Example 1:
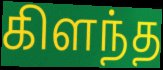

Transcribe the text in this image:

கிளந்த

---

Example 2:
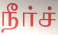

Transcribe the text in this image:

நீர்ச்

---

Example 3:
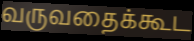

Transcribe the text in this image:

வருவதைக்கூட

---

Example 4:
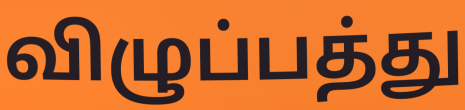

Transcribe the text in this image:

விழுப்பத்து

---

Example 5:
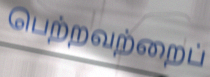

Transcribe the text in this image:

பெற்றவற்றைப்